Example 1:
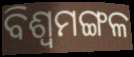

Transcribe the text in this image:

ବିଶ୍ୱମଙ୍ଗଳ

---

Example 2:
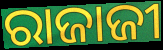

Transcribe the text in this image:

ରାଜାଜୀ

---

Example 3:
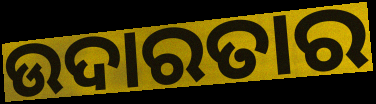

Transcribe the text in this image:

ଉଦାରତାର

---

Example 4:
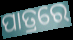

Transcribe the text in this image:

ପାତ୍ରରେ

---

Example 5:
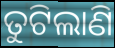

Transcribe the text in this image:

ତୁଟିଲାଣି